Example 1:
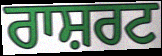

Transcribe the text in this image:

ਰਾਸ਼ਰਟ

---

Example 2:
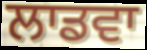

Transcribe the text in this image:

ਲਾਡਵਾ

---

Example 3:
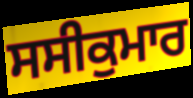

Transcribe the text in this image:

ਸਸੀਕੁਮਾਰ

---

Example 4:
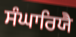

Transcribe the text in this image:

ਸੰਘਾਰਿਯੈ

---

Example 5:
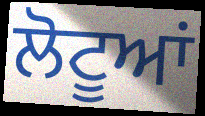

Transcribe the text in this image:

ਲੋਟੂਆਂ